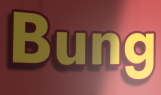
Bung